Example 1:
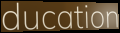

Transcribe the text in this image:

ducation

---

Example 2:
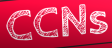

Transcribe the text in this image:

CCNs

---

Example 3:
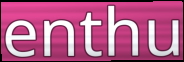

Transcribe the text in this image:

enthu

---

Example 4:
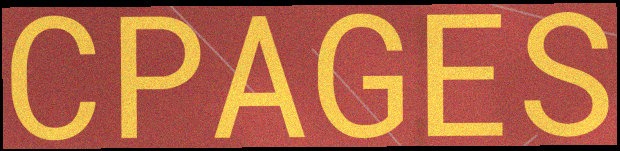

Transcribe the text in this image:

CPAGES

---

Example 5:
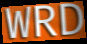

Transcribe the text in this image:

WRD